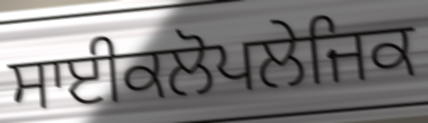
ਸਾਈਕਲੋਪਲੇਜਿਕ